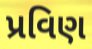
પ્રવિણ